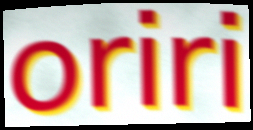
oriri